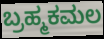
ಬ್ರಹ್ಮಕಮಲ